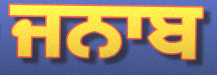
ਜਨਾਬ